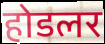
होडलर